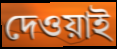
দেওয়াই